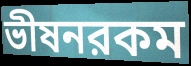
ভীষনরকম